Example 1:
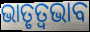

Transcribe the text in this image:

ଭାତୃତ୍ବଭାବ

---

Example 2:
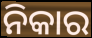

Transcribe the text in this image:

ନିକାର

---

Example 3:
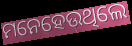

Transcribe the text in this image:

ମନେହେଉଥିଲେ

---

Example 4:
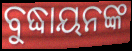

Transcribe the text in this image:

ବୁଦ୍ଧାୟନଙ୍କ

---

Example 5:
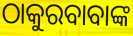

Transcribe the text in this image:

ଠାକୁରବାବାଙ୍କ